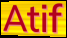
Atif